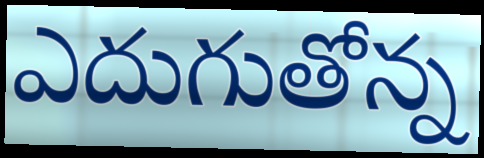
ఎదుగుతోన్న